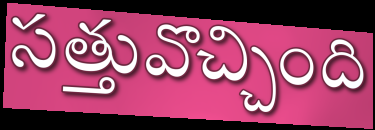
సత్తువొచ్చింది